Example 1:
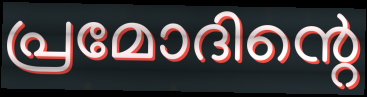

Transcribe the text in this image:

പ്രമോദിന്റെ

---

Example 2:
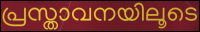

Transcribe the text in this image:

പ്രസ്താവനയിലൂടെ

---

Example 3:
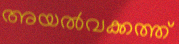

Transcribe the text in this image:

അയൽവക്കത്ത്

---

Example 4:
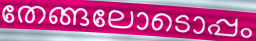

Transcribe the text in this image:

തേങ്ങലോടൊപ്പം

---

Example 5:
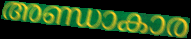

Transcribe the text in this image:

അണ്ഡാകാര